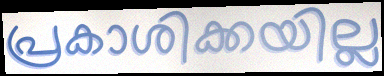
പ്രകാശിക്കയില്ല